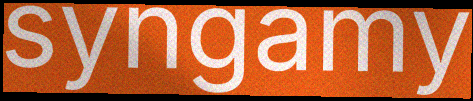
syngamy